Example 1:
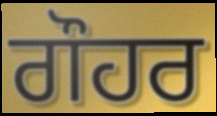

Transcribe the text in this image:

ਗੌਹਰ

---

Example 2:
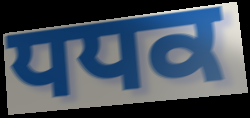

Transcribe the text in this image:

ਧਧਕ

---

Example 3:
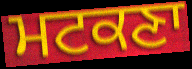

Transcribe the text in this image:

ਮਟਕਣਾ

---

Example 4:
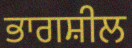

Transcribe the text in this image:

ਭਾਗਸ਼ੀਲ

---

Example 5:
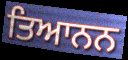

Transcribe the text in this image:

ਤਿਆਨਨ